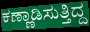
ಕಣ್ಣಾಡಿಸುತ್ತಿದ್ದ